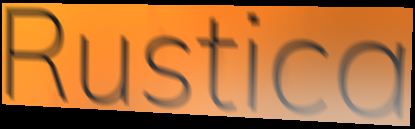
Rustica